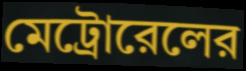
মেট্রোরেলের